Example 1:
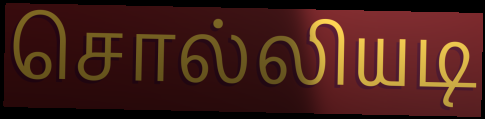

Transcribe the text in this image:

சொல்லியடி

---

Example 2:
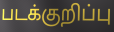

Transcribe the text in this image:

படக்குறிப்பு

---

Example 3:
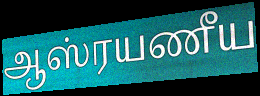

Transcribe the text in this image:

ஆஸ்ரயணீய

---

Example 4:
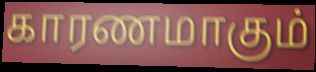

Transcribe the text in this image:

காரணமாகும்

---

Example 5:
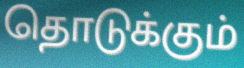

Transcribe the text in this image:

தொடுக்கும்